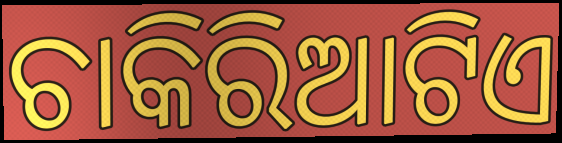
ଚାକିରିଆଟିଏ